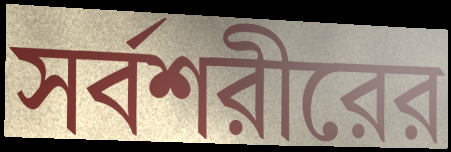
সর্বশরীরের